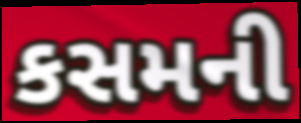
કસમની